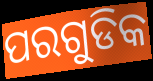
ପରଗୁଡିକ